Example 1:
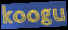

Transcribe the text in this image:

koogu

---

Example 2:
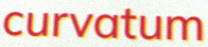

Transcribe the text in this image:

curvatum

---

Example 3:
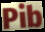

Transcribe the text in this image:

Pib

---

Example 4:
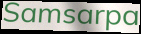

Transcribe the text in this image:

Samsarpa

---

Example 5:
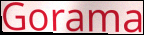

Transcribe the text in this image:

Gorama